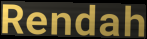
Rendah